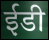
ई़डी